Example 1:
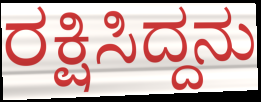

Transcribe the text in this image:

ರಕ್ಷಿಸಿದ್ದನು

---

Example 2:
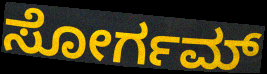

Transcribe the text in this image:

ಸೋರ್ಗಮ್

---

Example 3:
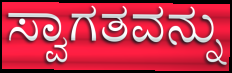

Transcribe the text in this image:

ಸ್ವಾಗತವನ್ನು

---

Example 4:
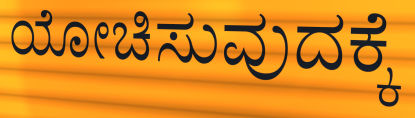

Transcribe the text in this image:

ಯೋಚಿಸುವುದಕ್ಕೆ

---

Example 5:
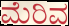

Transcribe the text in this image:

ಮೆರಿವ